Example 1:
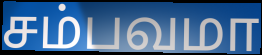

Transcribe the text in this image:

சம்பவமா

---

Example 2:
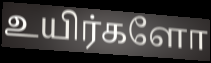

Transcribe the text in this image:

உயிர்களோ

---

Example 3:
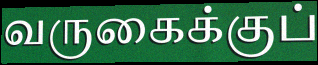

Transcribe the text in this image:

வருகைக்குப்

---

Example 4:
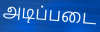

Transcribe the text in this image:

அடிப்படை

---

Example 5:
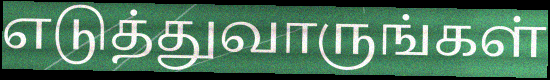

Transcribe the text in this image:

எடுத்துவாருங்கள்